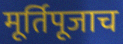
मूर्तिपूजाच